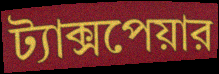
ট্যাক্সপেয়ার